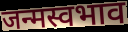
जन्मस्वभाव